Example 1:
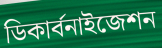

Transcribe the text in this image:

ডিকার্বনাইজেশন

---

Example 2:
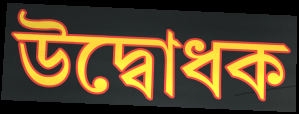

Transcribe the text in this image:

উদ্বোধক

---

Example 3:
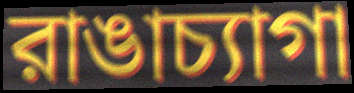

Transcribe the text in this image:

রাঙাচ্যাগা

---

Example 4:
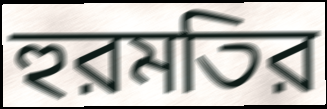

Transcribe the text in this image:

হুরমতির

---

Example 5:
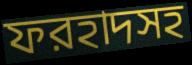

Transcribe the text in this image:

ফরহাদসহ